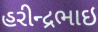
હરીન્દ્રભાઇ